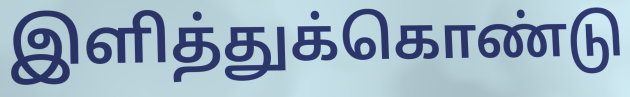
இளித்துக்கொண்டு